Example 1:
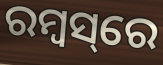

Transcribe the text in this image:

ରମ୍ବସ୍‌ରେ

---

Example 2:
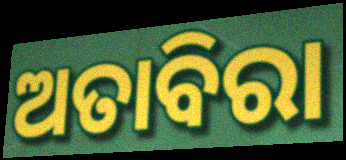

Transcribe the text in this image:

ଅତାବିରା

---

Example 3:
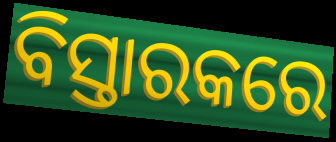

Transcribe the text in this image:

ବିସ୍ତାରକରେ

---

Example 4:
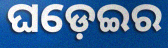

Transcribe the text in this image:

ଘଡ଼େଇର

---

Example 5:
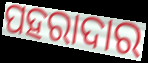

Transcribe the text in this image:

ପହରାଦାର